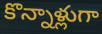
కొన్నాళ్లుగా